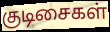
குடிசைகள்